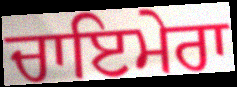
ਚਾਇਮੇਰਾ